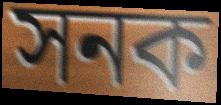
সনক